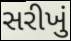
સરીખું